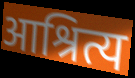
आश्रित्य